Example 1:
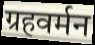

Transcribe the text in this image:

ग्रहवर्मन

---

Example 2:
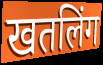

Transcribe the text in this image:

खतलिंग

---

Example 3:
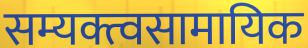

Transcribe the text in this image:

सम्यक्त्वसामायिक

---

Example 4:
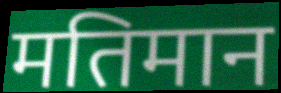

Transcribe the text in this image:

मतिमान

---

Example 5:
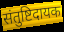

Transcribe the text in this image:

संतुष्टिदायक